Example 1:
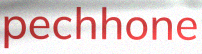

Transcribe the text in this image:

pechhone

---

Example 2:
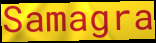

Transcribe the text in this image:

Samagra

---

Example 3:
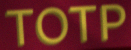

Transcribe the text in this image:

TOTP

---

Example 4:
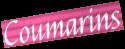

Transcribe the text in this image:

Coumarins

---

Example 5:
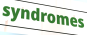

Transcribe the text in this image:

syndromes